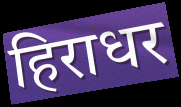
हिराधर